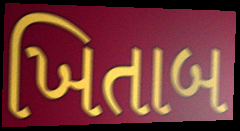
ખિતાબ